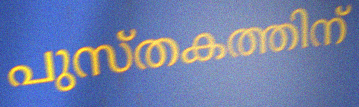
പുസ്തകത്തിന്